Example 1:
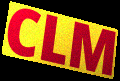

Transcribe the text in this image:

CLM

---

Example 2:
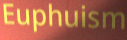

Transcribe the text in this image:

Euphuism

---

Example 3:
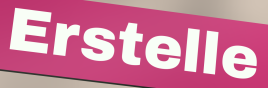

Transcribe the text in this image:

Erstelle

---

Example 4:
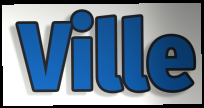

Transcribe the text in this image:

Ville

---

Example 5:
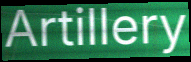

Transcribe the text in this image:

Artillery